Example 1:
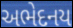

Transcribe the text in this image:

અભેદનય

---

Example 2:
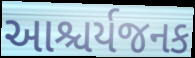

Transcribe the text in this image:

આશ્ચર્યજનક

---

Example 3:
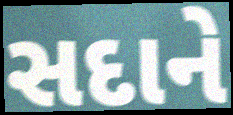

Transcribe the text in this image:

સદાને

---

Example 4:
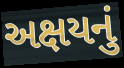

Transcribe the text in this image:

અક્ષયનું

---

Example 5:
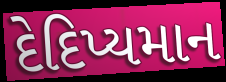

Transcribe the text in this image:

દેદિપ્યમાન